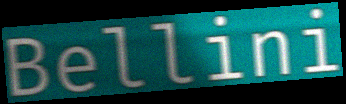
Bellini